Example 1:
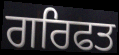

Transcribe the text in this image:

ਗਰਿਫਤ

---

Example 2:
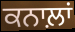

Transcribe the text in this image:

ਕਨਾਲ਼ਾਂ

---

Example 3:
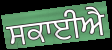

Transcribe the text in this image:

ਸਕਾਈਐ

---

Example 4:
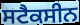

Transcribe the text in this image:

ਸਟੈਕਸੀਨ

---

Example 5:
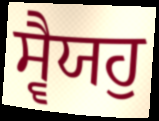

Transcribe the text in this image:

ਸ੍ਵੈਯਹੁ